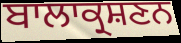
ਬਾਲਾਕ੍ਰਸ਼ਣਨ